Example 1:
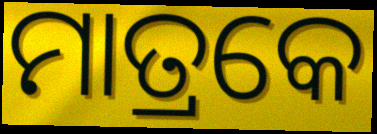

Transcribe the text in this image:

ମାତ୍ରକେ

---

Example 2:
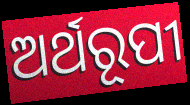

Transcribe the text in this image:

ଅର୍ଥରୂପୀ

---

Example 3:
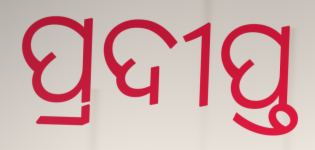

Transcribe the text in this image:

ପ୍ରଦୀପ୍ତ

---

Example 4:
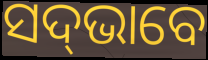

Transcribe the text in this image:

ସଦ୍‌ଭାବେ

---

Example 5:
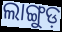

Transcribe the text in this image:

ଲାଙ୍ଗୁଡ଼